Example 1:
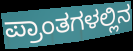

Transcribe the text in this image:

ಪ್ರಾಂತಗಳಲ್ಲಿನ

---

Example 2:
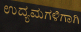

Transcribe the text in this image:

ಉದ್ಯಮಗಳಿಗಾಗಿ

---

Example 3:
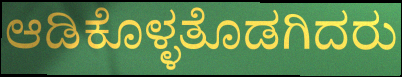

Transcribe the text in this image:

ಆಡಿಕೊಳ್ಳತೊಡಗಿದರು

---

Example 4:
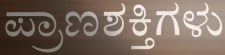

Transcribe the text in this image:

ಪ್ರಾಣಶಕ್ತಿಗಳು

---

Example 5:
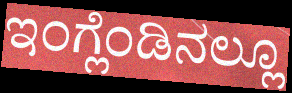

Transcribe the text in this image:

ಇಂಗ್ಲೆಂಡಿನಲ್ಲೂ